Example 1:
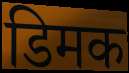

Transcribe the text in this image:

डिमक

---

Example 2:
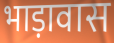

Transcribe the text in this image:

भाड़ावास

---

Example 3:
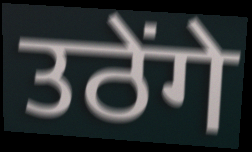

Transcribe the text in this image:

उठेंगे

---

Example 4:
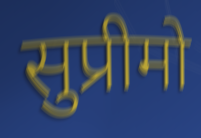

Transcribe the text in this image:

सुप्रीमो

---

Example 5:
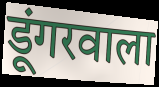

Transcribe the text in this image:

डूंगरवाला